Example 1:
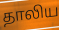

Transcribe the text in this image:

தாலிய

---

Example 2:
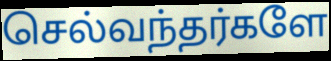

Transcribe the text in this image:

செல்வந்தர்களே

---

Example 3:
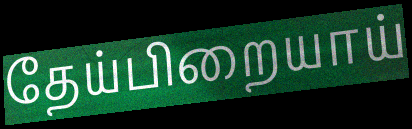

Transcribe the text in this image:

தேய்பிறையாய்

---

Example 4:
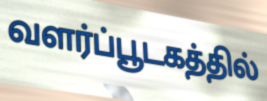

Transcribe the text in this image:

வளர்ப்பூடகத்தில்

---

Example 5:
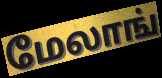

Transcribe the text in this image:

மேலாங்